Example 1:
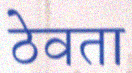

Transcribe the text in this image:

ठेवता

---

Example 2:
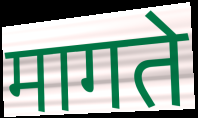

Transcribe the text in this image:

मागते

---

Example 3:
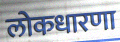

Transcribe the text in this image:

लोकधारणा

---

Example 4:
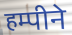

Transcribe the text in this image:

हम्पीने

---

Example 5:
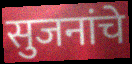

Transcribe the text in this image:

सुजनांचे